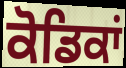
ਕੋਡਿਕਾਂ